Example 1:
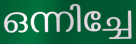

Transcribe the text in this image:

ഒന്നിച്ചേ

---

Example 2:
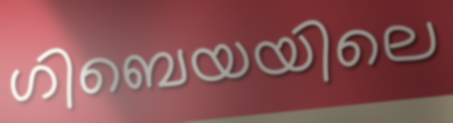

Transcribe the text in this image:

ഗിബെയയിലെ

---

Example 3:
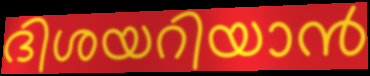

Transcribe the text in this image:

ദിശയറിയാൻ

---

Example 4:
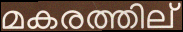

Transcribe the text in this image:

മകരത്തില്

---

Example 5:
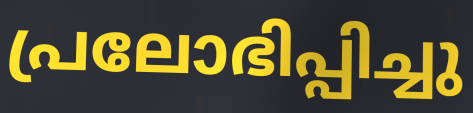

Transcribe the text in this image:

പ്രലോഭിപ്പിച്ചു